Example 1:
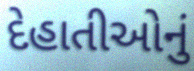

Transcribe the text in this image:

દેહાતીઓનું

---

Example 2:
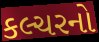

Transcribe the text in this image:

કલ્ચરનો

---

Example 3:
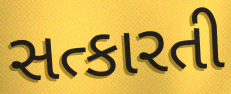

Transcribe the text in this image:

સત્કારતી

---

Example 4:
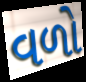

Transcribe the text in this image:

વળો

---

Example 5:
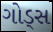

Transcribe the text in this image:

ગોડ્સ